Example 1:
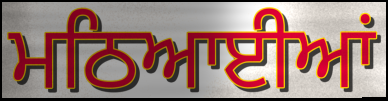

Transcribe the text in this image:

ਮਠਿਆਈਆਂ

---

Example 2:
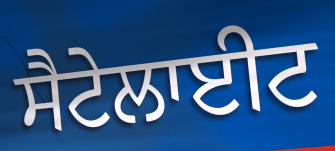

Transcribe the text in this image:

ਸੈਟੇਲਾਈਟ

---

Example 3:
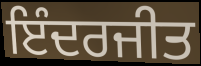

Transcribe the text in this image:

ਇੰਦਰਜੀਤ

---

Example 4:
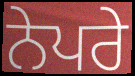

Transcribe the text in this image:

ਨੇਪਰੇ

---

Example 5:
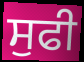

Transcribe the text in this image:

ਸੁਫੀ